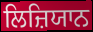
ਲਿਜ਼ਿਯਾਨ